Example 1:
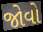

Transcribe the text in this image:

જોવો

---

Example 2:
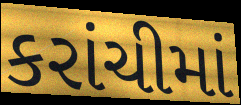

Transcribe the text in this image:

કરાંચીમાં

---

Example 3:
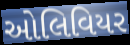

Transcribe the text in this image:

ઓલિવિયર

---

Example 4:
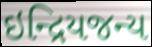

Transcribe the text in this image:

ઇન્દ્રિયજન્ય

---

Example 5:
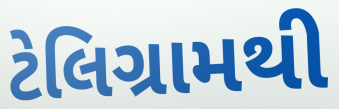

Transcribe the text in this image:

ટેલિગ્રામથી